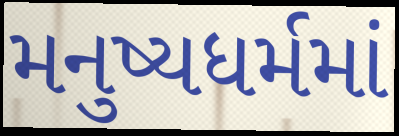
મનુષ્યધર્મમાં